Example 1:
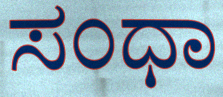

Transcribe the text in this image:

ಸಂಧಾ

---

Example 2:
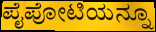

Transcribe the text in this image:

ಪೈಪೋಟಿಯನ್ನೂ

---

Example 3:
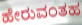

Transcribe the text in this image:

ಹೇರುವಂತಹ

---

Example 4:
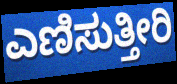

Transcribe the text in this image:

ಎಣಿಸುತ್ತೀರಿ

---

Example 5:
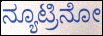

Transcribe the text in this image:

ನ್ಯೂಟ್ರಿನೋ